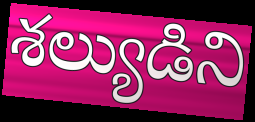
శల్యుడిని